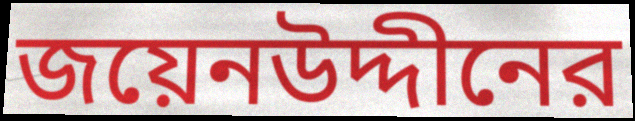
জয়েনউদ্দীনের